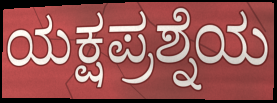
ಯಕ್ಷಪ್ರಶ್ನೆಯ